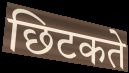
छिटकते